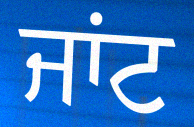
ਜਾਂਟ